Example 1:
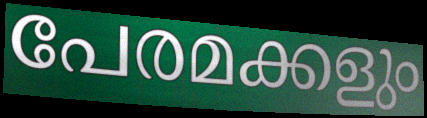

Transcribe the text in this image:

പേരമക്കളും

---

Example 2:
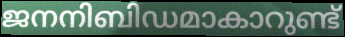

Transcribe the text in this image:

ജനനിബിഡമാകാറുണ്ട്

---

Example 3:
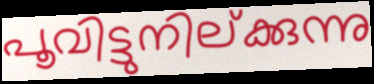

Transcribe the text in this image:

പൂവിട്ടുനില്ക്കുന്നു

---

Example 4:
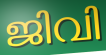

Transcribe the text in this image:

ജിവി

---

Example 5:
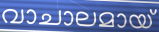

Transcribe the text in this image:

വാചാലമായ്